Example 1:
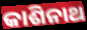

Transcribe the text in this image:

କାଶିନାଥ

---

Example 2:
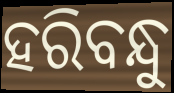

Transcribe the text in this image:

ହରିବନ୍ଧୁ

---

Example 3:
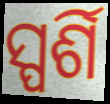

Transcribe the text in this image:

ସ୍ପର୍ଶି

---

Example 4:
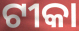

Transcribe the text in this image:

ଟୀକା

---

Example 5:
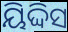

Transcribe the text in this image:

ୟିଦ୍ଦିସ